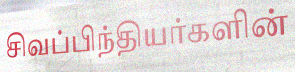
சிவப்பிந்தியர்களின்